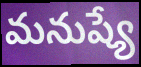
మనుష్యే